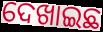
ଦେଖାଇଛ